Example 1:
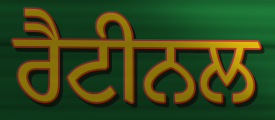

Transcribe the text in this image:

ਰੈਟੀਨਲ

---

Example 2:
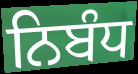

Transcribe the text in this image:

ਨਿਬੰਧ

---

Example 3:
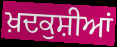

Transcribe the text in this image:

ਖ਼ਦਕੁਸ਼ੀਆਂ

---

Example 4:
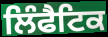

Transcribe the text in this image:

ਲਿੰਫੈਟਿਕ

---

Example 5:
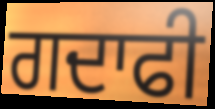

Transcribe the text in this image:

ਗਦਾਫੀ